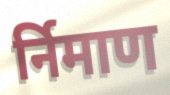
र्निमाण